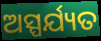
ଅସ୍ପର୍ଯ୍ୟତ